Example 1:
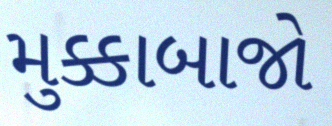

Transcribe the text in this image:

મુક્કાબાજો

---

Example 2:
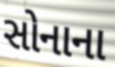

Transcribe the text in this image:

સોનાના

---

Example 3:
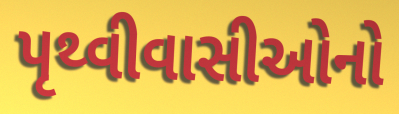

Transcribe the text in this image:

પૃથ્વીવાસીઓનો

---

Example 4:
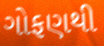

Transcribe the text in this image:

ગોફણથી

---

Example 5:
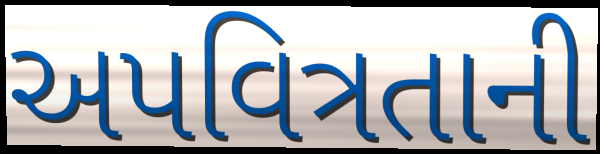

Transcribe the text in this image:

અપવિત્રતાની